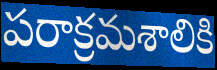
పరాక్రమశాలికి